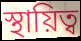
স্থায়িত্ব